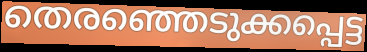
തെരഞ്ഞെടുക്കപ്പെട്ട